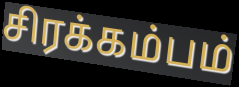
சிரக்கம்பம்